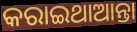
କରାଇଥାଆନ୍ତା